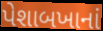
પેશાબખાનાં